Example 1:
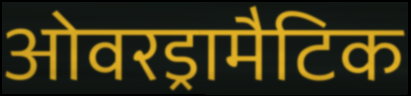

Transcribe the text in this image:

ओवरड्रामैटिक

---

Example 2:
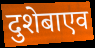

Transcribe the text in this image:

दुशेबाएव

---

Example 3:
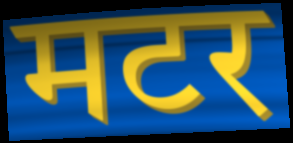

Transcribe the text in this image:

मटर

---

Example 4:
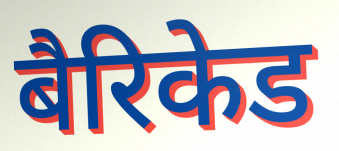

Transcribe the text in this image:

बैरिकेड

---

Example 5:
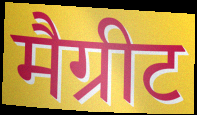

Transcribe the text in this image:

मैग्रीट